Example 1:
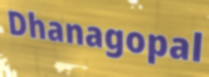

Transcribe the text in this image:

Dhanagopal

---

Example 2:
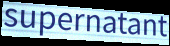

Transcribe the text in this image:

supernatant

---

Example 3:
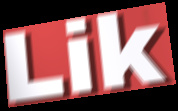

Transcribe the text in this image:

Lik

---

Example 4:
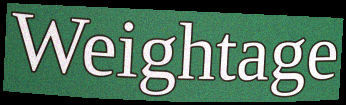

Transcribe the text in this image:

Weightage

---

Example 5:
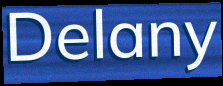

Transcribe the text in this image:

Delany